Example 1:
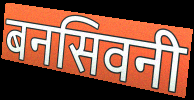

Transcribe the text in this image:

बनसिवनी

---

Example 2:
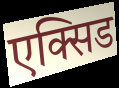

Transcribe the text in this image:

एक्सिड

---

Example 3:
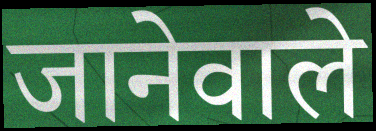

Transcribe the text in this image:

जानेवाले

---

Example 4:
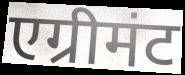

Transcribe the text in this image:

एग्रीमंट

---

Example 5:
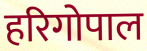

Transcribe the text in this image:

हरिगोपाल